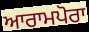
ਆਰਾਮਪੋਰਾ